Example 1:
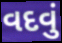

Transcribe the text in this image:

વદવું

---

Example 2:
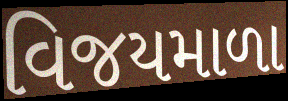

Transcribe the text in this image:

વિજયમાળા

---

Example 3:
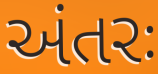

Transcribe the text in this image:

અંતરઃ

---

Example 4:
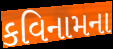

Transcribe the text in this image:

કવિનામના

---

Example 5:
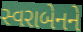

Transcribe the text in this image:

સ્વરાબેનને